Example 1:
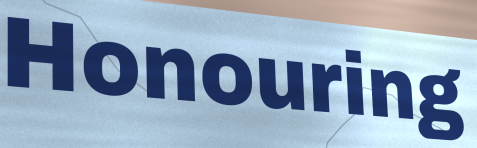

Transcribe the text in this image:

Honouring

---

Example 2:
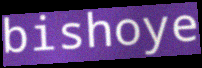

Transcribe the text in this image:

bishoye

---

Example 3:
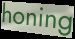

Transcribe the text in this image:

honing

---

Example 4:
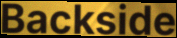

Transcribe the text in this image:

Backside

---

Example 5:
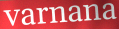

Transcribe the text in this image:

varnana